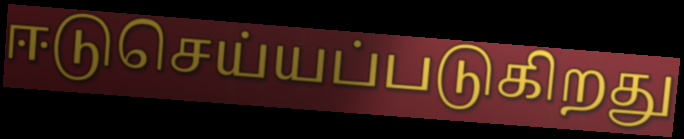
ஈடுசெய்யப்படுகிறது